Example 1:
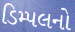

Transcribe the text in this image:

ડિમ્પલનો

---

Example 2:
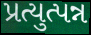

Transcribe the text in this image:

પ્રત્યુત્પન્ન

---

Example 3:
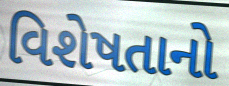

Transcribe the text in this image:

વિશેષતાનો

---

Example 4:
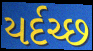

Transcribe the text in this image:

યર્દચ્છ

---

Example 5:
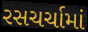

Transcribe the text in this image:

રસચર્ચામાં